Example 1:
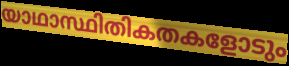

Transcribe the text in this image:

യാഥാസ്ഥിതികതകളോടും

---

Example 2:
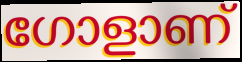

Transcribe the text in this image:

ഗോളാണ്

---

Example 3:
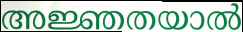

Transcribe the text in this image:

അജ്ഞതയാൽ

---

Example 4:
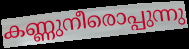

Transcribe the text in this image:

കണ്ണുനീരൊപ്പുന്നു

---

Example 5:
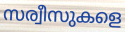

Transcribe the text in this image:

സര്വീസുകളെ